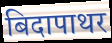
बिदापाथर